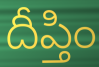
దీప్తిం